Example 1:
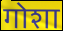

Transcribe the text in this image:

गोशा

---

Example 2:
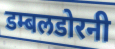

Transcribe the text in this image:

डम्बलडोरनी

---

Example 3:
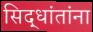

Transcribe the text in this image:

सिद्धांतांना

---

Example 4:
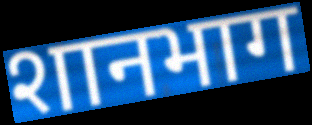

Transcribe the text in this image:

शानभाग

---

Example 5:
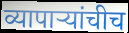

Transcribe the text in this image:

व्यापाऱ्यांचीच